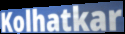
Kolhatkar